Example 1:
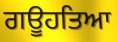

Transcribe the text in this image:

ਗਊਹਤਿਆ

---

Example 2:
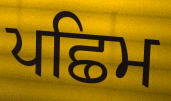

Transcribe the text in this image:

ਪਛਿਮ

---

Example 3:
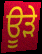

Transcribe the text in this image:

ਊੜੇ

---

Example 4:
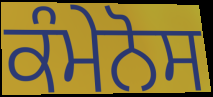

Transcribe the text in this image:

ਕੰਮੇਨੋਸ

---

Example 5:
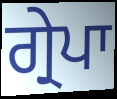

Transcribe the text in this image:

ਗ੍ਰੇਪਾ